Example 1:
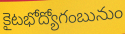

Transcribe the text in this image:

కైటభోద్యోగంబునుం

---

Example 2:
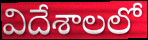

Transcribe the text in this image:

విదేశాలలో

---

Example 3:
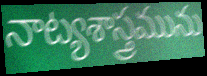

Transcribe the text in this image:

నాట్యశాస్త్రమును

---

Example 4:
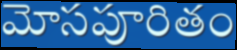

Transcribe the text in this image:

మోసపూరితం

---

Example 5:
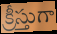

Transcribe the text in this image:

క్రీస్తుగా